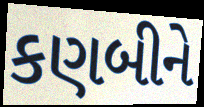
કણબીને